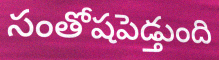
సంతోషపెడ్తుంది